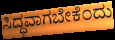
ಸಿದ್ಧವಾಗಬೇಕೆಂದು